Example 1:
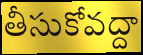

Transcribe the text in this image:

తీసుకోవద్దా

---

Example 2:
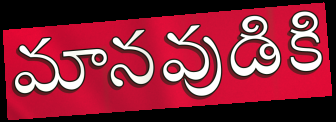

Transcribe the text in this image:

మానవుడికి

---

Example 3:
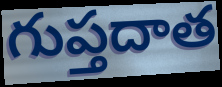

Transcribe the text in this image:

గుప్తదాత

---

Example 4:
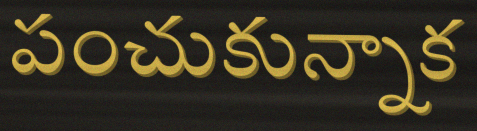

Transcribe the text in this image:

పంచుకున్నాక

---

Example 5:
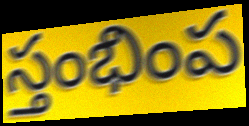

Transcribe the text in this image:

స్తంభింప